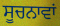
ਸੂਚਨਾਵਾਂ